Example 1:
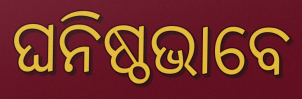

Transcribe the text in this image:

ଘନିଷ୍ଠଭାବେ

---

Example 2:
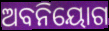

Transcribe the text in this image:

ଅବନିୟୋଗ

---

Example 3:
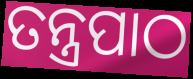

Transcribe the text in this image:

ତନ୍ତ୍ରପାଠ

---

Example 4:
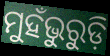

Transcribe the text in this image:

ମୁହଁଭୁରୁଡ଼ି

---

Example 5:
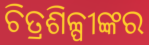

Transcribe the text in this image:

ଚିତ୍ରଶିଳ୍ପୀଙ୍କର